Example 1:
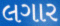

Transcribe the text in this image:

લગાર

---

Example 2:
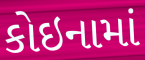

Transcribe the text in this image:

કોઇનામાં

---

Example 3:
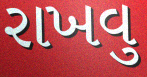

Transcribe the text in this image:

રાખવુ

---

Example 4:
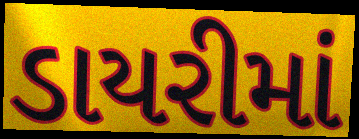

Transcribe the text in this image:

ડાયરીમાં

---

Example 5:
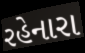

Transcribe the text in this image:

રહેનારા